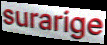
surarige